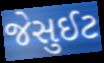
જેસુઈટ